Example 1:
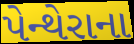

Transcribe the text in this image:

પેન્થેરાના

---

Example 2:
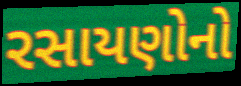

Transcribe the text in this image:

રસાયણોનો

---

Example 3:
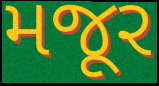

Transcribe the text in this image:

મજૂર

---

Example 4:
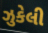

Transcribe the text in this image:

ઝુકેલી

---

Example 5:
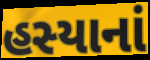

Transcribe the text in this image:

હસ્યાનાં